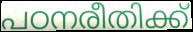
പഠനരീതിക്ക്